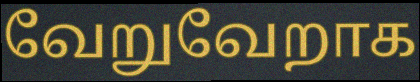
வேறுவேறாக